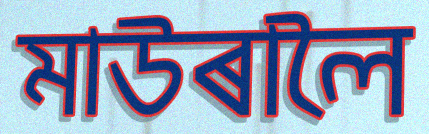
মাউৰালৈ